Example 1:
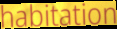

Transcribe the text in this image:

habitation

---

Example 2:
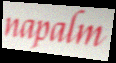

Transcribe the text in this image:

napalm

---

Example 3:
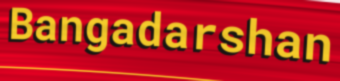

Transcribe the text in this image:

Bangadarshan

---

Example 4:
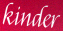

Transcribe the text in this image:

kinder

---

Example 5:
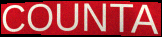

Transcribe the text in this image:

COUNTA